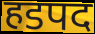
हडपद